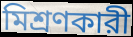
মিশ্রণকারী